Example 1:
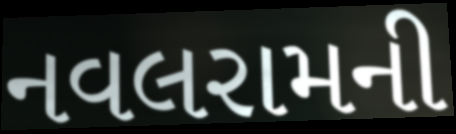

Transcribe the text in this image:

નવલરામની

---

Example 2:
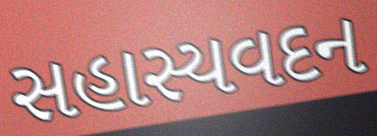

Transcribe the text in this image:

સહાસ્યવદન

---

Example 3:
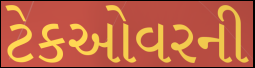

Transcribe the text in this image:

ટેકઓવરની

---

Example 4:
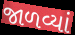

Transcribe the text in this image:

જાળવ્યાં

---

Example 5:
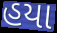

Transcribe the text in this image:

હયા